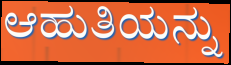
ಆಹುತಿಯನ್ನು